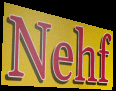
Nehf